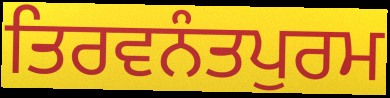
ਤਿਰਵਨੰਤਪੁਰਮ